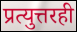
प्रत्युत्तरही